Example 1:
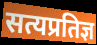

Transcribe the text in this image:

सत्यप्रतिज्ञ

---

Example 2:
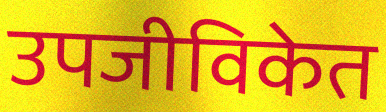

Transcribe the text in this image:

उपजीविकेत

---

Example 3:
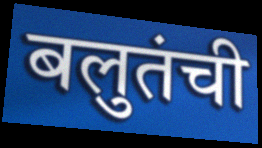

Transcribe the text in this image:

बलुतंची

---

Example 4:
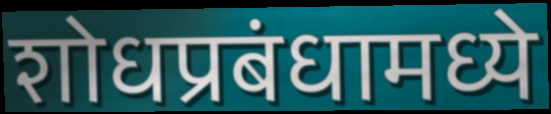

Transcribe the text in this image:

शोधप्रबंधामध्ये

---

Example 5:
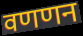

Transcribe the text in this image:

वणणन